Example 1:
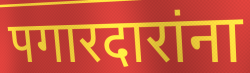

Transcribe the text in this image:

पगारदारांना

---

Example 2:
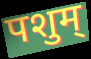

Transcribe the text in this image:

पशुम्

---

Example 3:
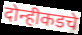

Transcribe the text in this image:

दोन्हीकडचे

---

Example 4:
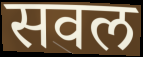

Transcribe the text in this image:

सवल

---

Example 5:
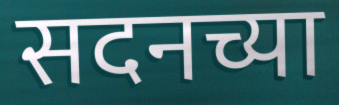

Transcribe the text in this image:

सदनच्या